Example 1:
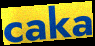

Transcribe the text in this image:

caka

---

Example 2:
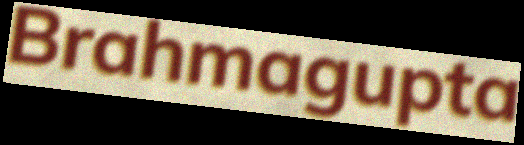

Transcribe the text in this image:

Brahmagupta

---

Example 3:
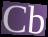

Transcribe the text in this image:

Cb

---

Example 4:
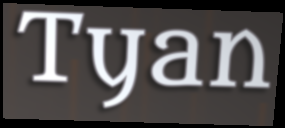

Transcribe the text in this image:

Tyan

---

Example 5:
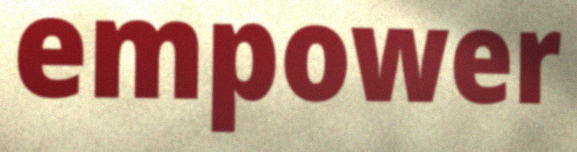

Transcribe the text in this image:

empower